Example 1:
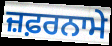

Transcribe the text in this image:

ਜ਼ਫ਼ਰਨਾਮੇ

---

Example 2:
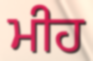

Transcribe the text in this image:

ਮੀਹ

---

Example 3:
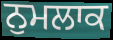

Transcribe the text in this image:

ਨੁਮਲਾਕ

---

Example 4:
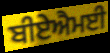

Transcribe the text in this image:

ਬੀਏਐਮਈ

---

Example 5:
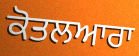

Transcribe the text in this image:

ਕੋਤਲਆਰਾ